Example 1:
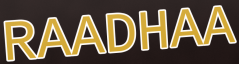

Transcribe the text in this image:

RAADHAA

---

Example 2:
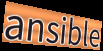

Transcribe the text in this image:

ansible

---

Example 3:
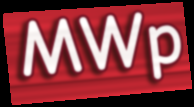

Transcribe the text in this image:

MWp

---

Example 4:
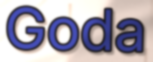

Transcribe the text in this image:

Goda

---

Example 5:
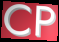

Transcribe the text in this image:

CP